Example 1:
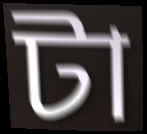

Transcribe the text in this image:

টা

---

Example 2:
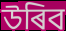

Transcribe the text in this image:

উৰিব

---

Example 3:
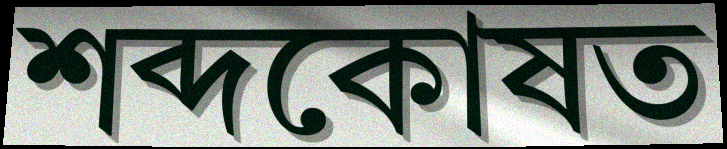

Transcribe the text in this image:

শব্দকোষত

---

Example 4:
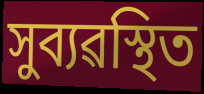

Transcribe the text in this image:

সুব্যৱস্থিত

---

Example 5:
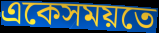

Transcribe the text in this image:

একেসময়তে